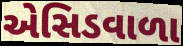
એસિડવાળા